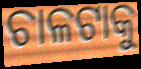
ଚାଳଟାକୁ